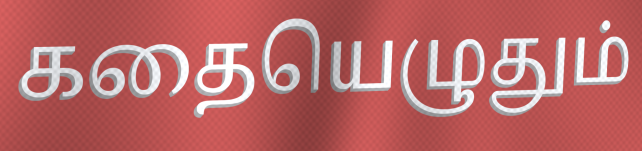
கதையெழுதும்